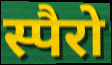
स्पैरो